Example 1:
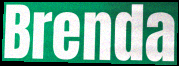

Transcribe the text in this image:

Brenda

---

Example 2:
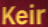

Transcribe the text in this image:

Keir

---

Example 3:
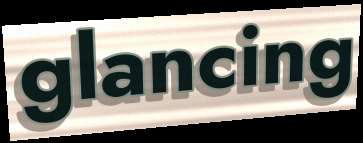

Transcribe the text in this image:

glancing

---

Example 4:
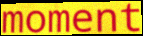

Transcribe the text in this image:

moment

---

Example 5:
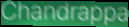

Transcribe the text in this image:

Chandrappa